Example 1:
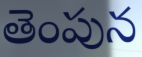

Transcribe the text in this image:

తెంపున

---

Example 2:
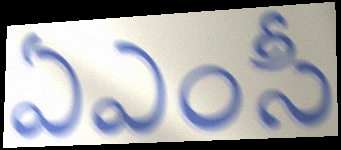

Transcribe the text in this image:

ఏఎంసీ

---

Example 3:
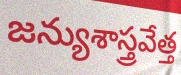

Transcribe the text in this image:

జన్యుశాస్త్రవేత్త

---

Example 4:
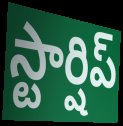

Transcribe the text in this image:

స్టార్షిప్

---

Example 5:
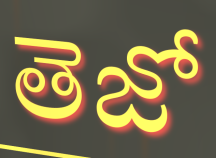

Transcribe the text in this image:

తెజో